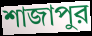
শাজাপুর